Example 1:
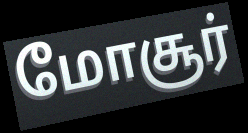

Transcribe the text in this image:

மோசூர்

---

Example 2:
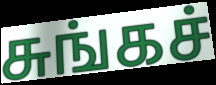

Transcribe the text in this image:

சுங்கச்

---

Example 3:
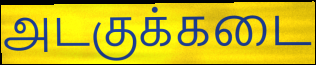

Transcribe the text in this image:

அடகுக்கடை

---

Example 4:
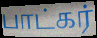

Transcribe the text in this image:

பாட்கர்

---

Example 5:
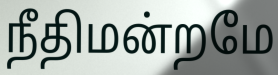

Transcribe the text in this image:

நீதிமன்றமே